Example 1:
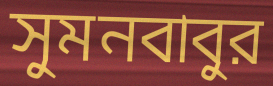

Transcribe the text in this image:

সুমনবাবুর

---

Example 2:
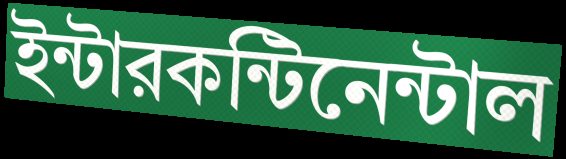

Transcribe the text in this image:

ইন্টারকন্টিনেন্টাল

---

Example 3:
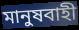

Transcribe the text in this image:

মানুষবাহী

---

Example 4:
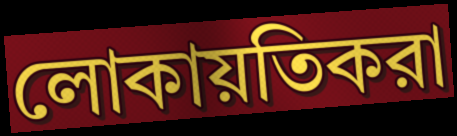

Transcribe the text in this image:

লোকায়তিকরা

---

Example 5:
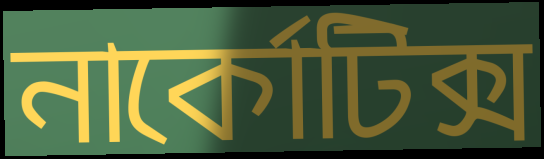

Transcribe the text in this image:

নার্কোটিক্স